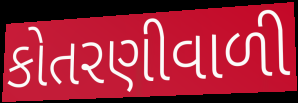
કોતરણીવાળી